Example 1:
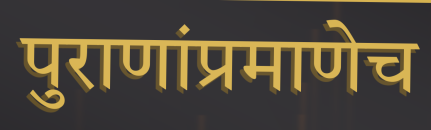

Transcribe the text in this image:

पुराणांप्रमाणेच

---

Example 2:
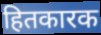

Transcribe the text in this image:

हितकारक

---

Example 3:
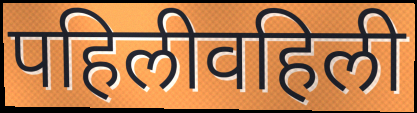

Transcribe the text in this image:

पहिलीवहिली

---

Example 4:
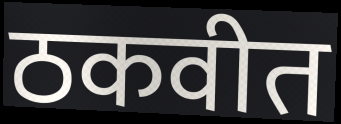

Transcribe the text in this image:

ठकवीत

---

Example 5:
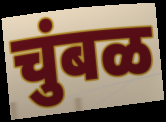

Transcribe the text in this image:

चुंबळ